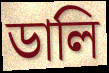
ডালি